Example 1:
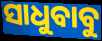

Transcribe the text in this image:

ସାଧୁବାବୁ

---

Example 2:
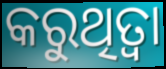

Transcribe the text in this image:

କରୁଥିତ୍ବା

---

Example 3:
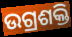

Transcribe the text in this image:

ଉଗ୍ରଶକ୍ତି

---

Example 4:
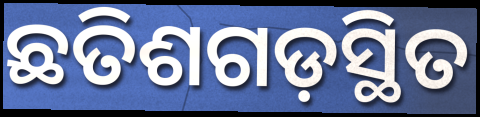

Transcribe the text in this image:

ଛତିଶଗଡ଼ସ୍ଥିତ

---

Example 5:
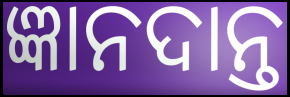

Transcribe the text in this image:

ଜ୍ଞାନଦାନ୍ତ